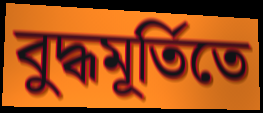
বুদ্ধমূর্তিতে